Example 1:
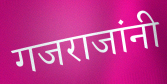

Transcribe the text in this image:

गजराजांनी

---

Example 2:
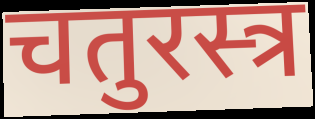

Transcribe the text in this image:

चतुरस्त्र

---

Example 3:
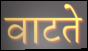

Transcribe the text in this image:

वाटते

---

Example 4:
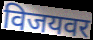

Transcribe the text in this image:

विजयवर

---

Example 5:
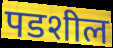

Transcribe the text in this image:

पडशील